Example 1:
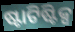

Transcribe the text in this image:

ଷ୍ଟାଟିଷ୍ଟିକ୍ସ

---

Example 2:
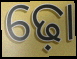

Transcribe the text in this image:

ଢ଼ୋ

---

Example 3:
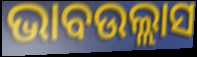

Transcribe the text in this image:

ଭାବଉଲ୍ଲାସ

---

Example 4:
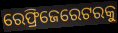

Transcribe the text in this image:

ରେଫ୍ରିଜେରେଟରକୁ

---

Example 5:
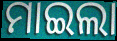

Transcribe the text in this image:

ମାଇଲା